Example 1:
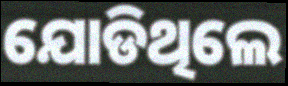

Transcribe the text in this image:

ଯୋଡିଥିଲେ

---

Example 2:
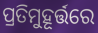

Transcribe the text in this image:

ପ୍ରତିମୁହୂର୍ତ୍ତରେ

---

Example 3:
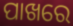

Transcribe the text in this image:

ପାଖରେ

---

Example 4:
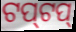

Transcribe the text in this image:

ଟପ୍‌ଟପ୍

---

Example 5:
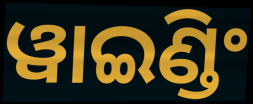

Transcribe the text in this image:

ୱାଇଣ୍ଡିଂ